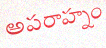
అపరాహ్నం